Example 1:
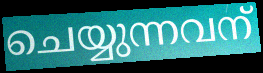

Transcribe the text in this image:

ചെയ്യുന്നവന്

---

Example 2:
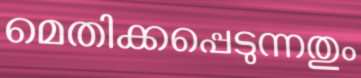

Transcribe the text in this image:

മെതിക്കപ്പെടുന്നതും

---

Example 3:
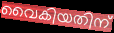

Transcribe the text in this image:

വൈകിയതിന്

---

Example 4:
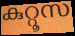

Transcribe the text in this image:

കുറ്റൂസ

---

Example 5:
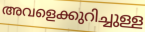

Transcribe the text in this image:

അവളെക്കുറിച്ചുള്ള